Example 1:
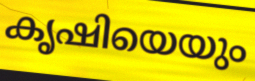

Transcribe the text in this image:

കൃഷിയെയും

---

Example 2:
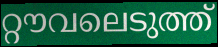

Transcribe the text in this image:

റ്റൗവലെടുത്ത്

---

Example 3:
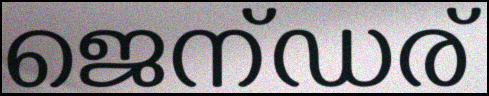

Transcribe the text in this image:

ജെന്ഡര്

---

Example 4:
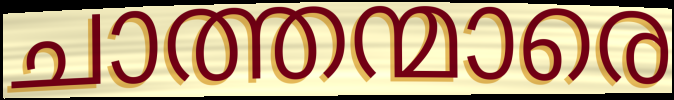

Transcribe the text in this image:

ചാത്തന്മാരെ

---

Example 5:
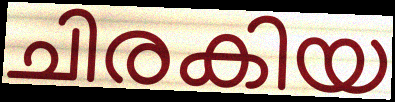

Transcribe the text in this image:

ചിരകിയ